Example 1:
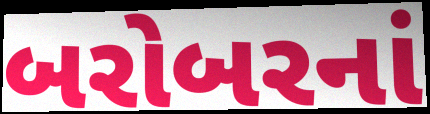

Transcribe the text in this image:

બરોબરનાં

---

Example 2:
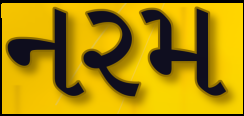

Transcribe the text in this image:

નરમ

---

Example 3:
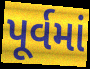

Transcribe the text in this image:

પૂર્વમાં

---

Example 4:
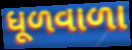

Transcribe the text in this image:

ધૂળવાળા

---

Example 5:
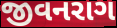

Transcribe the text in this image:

જીવનરાગ